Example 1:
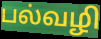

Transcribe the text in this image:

பல்வழி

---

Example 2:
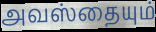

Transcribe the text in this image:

அவஸ்தையும்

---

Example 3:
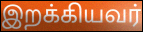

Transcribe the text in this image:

இறக்கியவர்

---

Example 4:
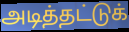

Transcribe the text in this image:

அடித்தட்டுக்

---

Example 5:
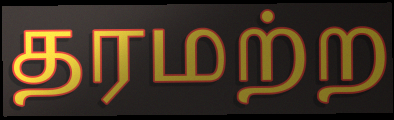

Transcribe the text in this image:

தரமற்ற